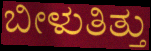
ಬೀಳುತಿತ್ತು